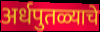
अर्धपुतळ्याचे